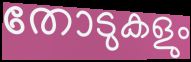
തോടുകളും